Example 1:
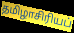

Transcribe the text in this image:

தமிழாசிரியப்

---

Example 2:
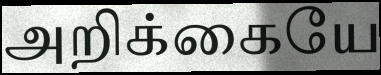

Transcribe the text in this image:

அறிக்கையே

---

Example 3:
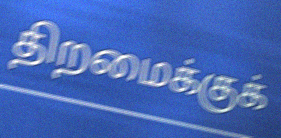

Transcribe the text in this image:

திறமைக்குக்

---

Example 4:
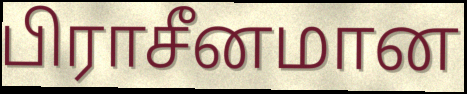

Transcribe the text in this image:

பிராசீனமான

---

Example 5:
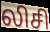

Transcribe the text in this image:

லிசி